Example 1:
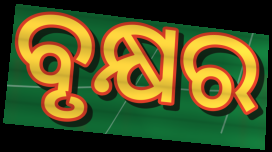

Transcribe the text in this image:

ବୃକ୍ଷର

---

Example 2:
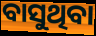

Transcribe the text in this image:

ବାସୁଥିବା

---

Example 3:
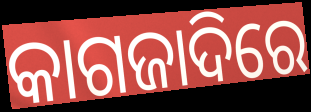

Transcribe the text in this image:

କାଗଜାଦିରେ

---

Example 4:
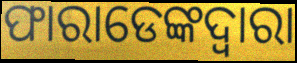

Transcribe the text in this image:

ଫାରାଡେଙ୍କଦ୍ୱାରା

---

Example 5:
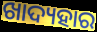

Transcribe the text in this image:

ଖାଦ୍ୟହାର